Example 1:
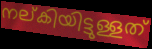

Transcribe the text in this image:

നല്കിയിട്ടുള്ളത്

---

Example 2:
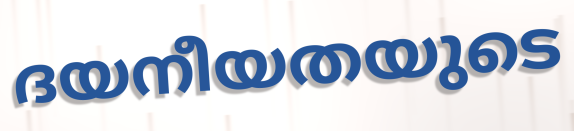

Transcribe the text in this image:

ദയനീയതയുടെ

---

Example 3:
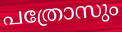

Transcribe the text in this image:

പത്രോസും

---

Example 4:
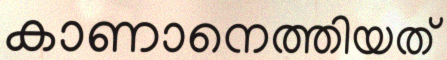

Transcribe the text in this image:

കാണാനെത്തിയത്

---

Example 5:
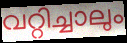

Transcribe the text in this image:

വറ്റിച്ചാലും